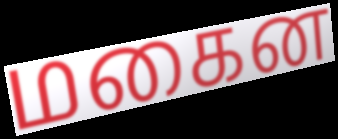
மகைன